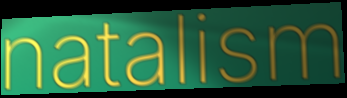
natalism